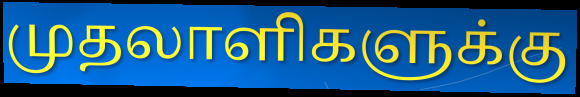
முதலாளிகளுக்கு